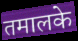
तमालके